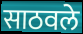
साठवले